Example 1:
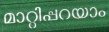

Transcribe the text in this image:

മാറ്റിപ്പറയാം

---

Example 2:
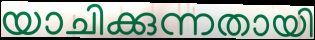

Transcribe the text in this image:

യാചിക്കുന്നതായി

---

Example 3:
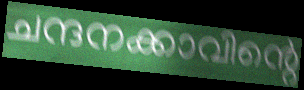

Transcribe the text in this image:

ചന്ദനക്കാവിന്റെ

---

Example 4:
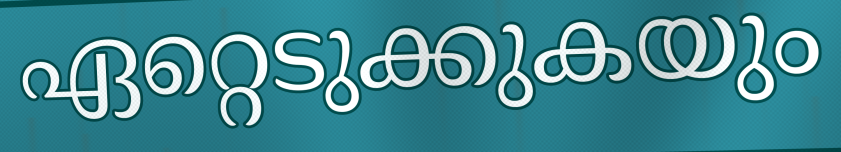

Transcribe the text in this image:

ഏറ്റെടുക്കുകയും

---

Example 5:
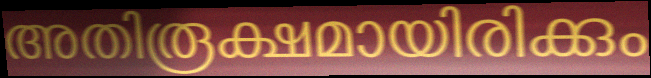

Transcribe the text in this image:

അതിരൂക്ഷമായിരിക്കും